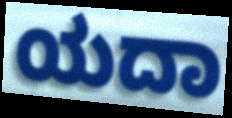
ಯದಾ